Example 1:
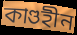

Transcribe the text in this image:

কাণ্ডহীন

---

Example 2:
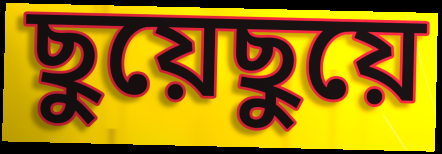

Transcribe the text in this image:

ছুয়েছুয়ে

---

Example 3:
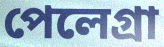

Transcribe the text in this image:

পেলেগ্রা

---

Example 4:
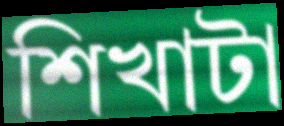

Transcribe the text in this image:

শিখাটা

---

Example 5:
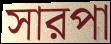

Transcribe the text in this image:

সারপা